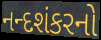
નન્દશંકરનો